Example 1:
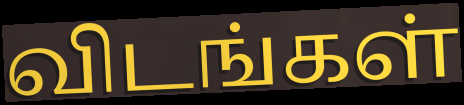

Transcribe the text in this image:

விடங்கள்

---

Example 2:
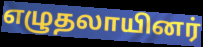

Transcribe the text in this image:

எழுதலாயினர்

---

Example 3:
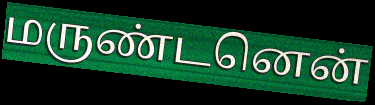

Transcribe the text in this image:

மருண்டனென்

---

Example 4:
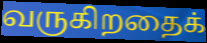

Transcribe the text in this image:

வருகிறதைக்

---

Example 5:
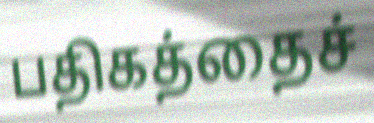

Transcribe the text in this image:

பதிகத்தைச்